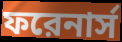
ফরেনার্স